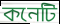
কনেটি